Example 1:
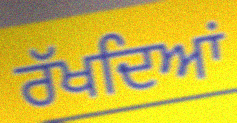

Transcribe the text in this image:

ਰੱਖਦਿਆਂ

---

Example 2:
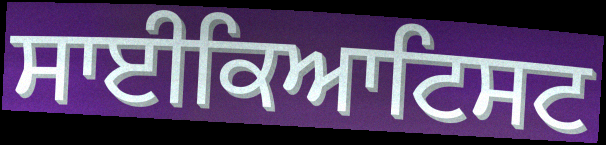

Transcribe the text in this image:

ਸਾਈਕਿਆਟਿਸਟ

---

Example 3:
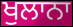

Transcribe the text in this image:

ਖੁਲਾਨਾ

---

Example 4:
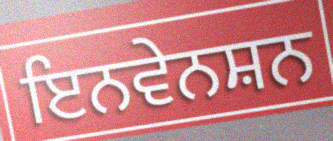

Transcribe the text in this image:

ਇਨਵੇਨਸ਼ਨ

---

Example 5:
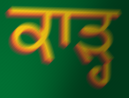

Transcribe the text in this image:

ਕਾੜ੍ਹ